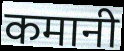
कमानी